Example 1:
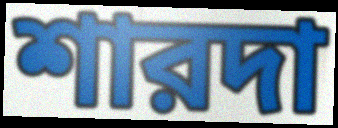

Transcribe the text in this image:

শারদা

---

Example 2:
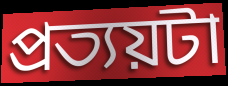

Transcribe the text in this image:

প্রত্যয়টা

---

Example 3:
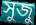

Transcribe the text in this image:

সুজু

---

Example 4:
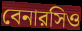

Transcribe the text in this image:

বেনারসিও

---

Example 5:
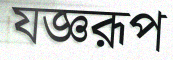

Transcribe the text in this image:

যজ্ঞরূপ